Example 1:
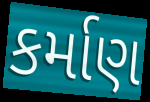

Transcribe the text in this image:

કર્માણ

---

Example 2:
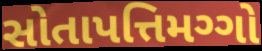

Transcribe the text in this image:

સોતાપત્તિમગ્ગો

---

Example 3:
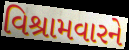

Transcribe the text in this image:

વિશ્રામવારને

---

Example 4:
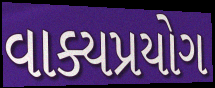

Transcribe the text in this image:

વાક્યપ્રયોગ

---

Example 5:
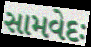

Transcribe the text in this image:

સામવેદઃ